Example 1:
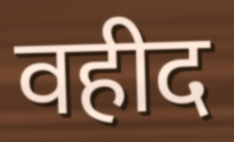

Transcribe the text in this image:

वहीद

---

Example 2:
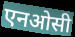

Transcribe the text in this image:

एनओसी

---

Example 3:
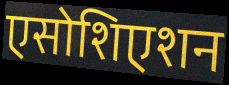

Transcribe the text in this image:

एसोशिएशन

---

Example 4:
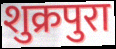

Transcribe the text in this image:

शुक्रपुरा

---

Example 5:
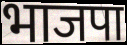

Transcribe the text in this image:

भाजपा